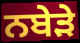
ਨਬੇੜੇ